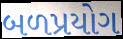
બળપ્રયોગ